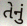
તેનું